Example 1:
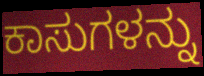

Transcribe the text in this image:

ಕಾಸುಗಳನ್ನು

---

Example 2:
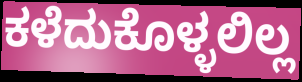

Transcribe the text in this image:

ಕಳೆದುಕೊಳ್ಳಲಿಲ್ಲ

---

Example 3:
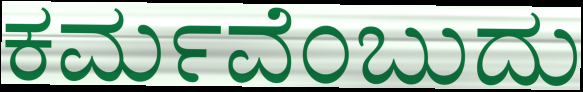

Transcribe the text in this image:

ಕರ್ಮವೆಂಬುದು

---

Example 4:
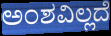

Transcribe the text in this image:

ಅಂಶವಿಲ್ಲದೆ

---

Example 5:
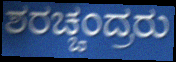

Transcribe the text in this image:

ಶರಚ್ಚಂದ್ರರು